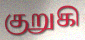
குறுகி